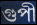
গুপী